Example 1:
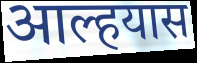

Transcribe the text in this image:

आल्हयास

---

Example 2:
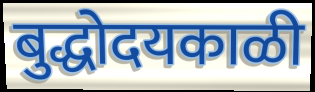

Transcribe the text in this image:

बुद्धोदयकाळी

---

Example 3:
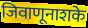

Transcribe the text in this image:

जिवाणूनाशके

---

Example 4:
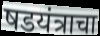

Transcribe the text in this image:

षडयंत्राचा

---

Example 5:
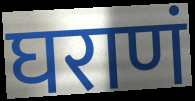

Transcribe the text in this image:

घराणं